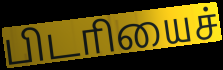
பிடரியைச்